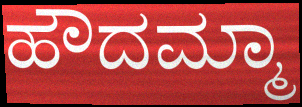
ಹೌದಮ್ಮಾ